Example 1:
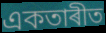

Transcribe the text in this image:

একতাৰীত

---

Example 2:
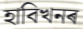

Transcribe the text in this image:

হাবিখনৰ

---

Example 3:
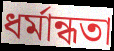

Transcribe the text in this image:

ধৰ্মান্ধতা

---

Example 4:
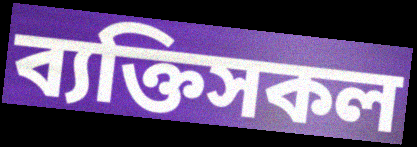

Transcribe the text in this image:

ব্যক্তিসকল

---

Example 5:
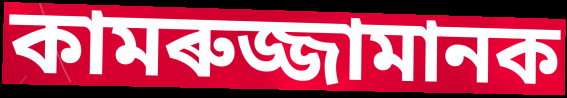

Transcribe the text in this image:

কামৰুজ্জামানক